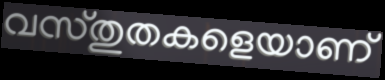
വസ്തുതകളെയാണ്